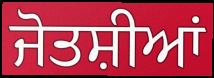
ਜੋਤਸ਼ੀਆਂ